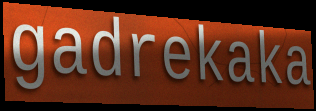
gadrekaka